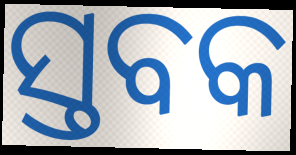
ସ୍ତବକ